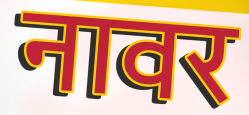
नावर